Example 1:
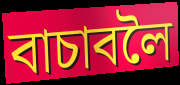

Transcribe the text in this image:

বাচাবলৈ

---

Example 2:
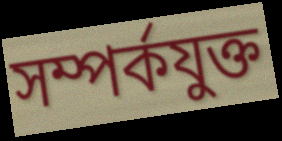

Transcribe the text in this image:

সম্পৰ্কযুক্ত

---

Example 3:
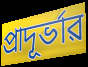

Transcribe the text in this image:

প্ৰাদূৰ্ভাৱ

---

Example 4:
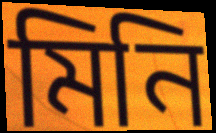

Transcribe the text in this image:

মিনি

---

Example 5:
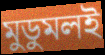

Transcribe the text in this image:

মুডুমলই